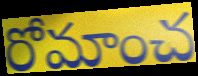
రోమాంచ